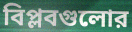
বিপ্লবগুলোর